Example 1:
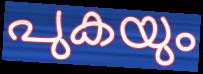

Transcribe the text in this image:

പുകയും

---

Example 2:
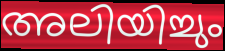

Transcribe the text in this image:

അലിയിച്ചും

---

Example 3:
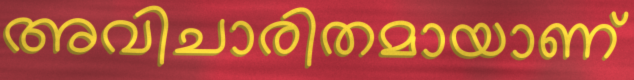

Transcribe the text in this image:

അവിചാരിതമായാണ്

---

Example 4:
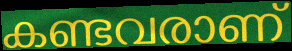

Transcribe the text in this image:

കണ്ടവരാണ്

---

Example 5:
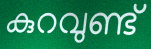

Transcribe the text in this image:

കുറവുണ്ട്